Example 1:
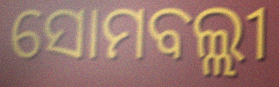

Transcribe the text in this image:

ସୋମବଲ୍ଲୀ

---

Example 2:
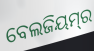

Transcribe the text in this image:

ବେଲଜିୟମ୍‌ର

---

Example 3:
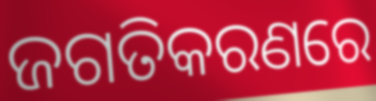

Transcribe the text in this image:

ଜଗତିକରଣରେ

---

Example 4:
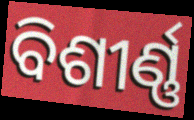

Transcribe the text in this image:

ବିଶୀର୍ଣ୍ଣ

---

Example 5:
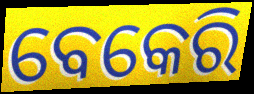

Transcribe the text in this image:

ବେକେରି